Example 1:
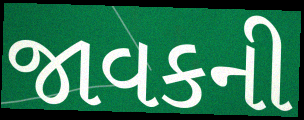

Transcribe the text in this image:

જાવકની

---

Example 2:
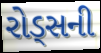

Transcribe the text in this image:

રોડ્સની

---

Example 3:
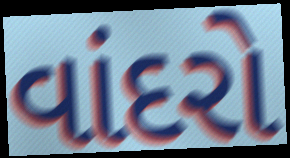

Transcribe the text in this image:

વાંદરો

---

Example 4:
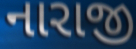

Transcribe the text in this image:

નારાજી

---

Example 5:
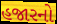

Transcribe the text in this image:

હજારનો